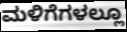
ಮಳಿಗೆಗಳಲ್ಲೂ